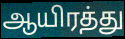
ஆயிரத்து